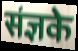
संज्ञके